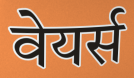
वेयर्स